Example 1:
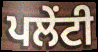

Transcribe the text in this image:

ਪਲੇਂਟੀ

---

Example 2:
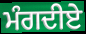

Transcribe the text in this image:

ਮੰਗਦੀਏ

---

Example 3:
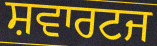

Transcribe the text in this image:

ਸ਼ਵਾਰਟਜ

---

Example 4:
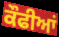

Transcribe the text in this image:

ਕੌਫੀਆਂ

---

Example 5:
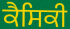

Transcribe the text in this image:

ਕੈਸਿਕੀ